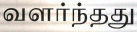
வளர்ந்தது